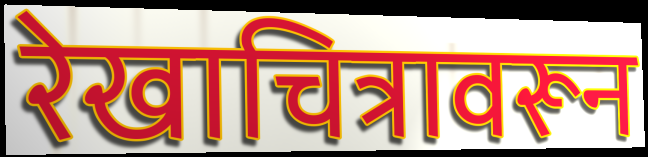
रेखाचित्रावरून